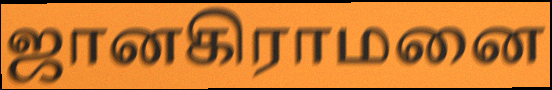
ஜானகிராமனை